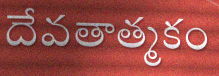
దేవతాత్మకం